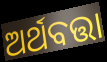
ଅର୍ଥବତ୍ତା